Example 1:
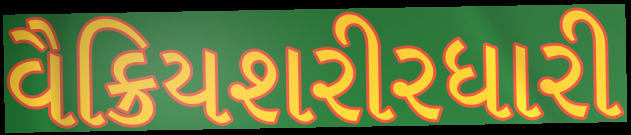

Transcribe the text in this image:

વૈક્રિયશરીરધારી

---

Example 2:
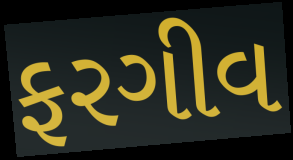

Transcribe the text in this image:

ફરગીવ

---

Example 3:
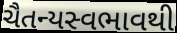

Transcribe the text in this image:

ચૈતન્યસ્વભાવથી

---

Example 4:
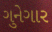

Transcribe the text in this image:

ગુનેગાર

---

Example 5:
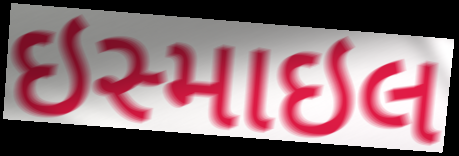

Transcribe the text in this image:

ઇસ્માઇલ